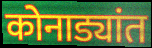
कोनाड्यांत